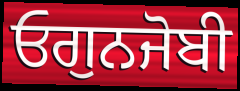
ਓਗੁਨਜੋਬੀ